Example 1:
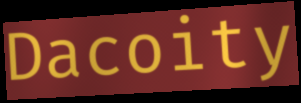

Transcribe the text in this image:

Dacoity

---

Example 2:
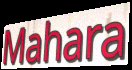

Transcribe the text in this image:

Mahara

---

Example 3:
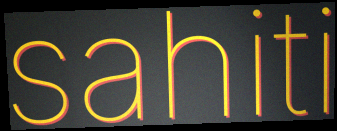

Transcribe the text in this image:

sahiti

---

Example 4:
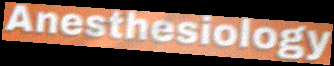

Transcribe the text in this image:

Anesthesiology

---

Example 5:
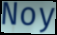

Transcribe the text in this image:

Noy